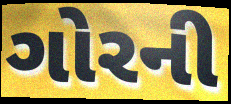
ગોરની